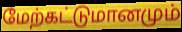
மேற்கட்டுமானமும்